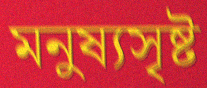
মনুষ্যসৃষ্ট